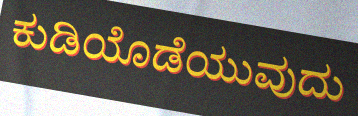
ಕುಡಿಯೊಡೆಯುವುದು